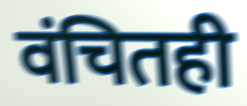
वंचितही